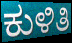
ಕುಳಿತಿ